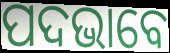
ପଦଭାବେ